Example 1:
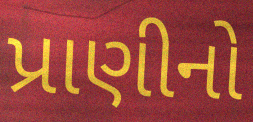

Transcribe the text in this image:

પ્રાણીનો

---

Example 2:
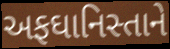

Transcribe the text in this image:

અફઘાનિસ્તાને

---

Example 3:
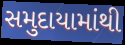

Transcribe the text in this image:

સમુદાયામાંથી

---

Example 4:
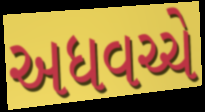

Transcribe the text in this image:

અધવચ્ચે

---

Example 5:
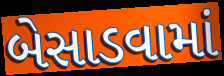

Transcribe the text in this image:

બેસાડવામાં